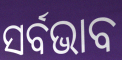
ସର୍ବଭାବ